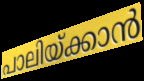
പാലിയ്ക്കാൻ